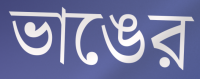
ভাঙের